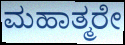
ಮಹಾತ್ಮರೇ